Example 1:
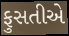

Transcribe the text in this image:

ફુસતીએ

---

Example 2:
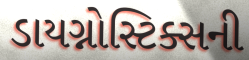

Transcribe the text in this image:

ડાયગ્નોસ્ટિક્સની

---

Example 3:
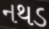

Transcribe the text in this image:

નથડ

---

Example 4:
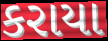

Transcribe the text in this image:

કરાયા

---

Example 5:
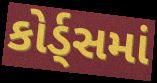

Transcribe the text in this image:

કોર્ડ્સમાં